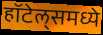
हॉटेल्समध्ये